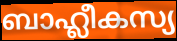
ബാഹ്ലീകസ്യ